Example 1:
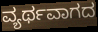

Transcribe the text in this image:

ವ್ಯರ್ಥವಾಗದ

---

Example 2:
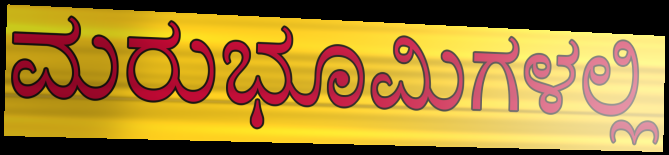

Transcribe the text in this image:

ಮರುಭೂಮಿಗಳಲ್ಲಿ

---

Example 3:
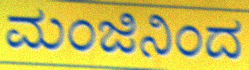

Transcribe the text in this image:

ಮಂಜಿನಿಂದ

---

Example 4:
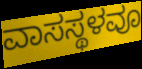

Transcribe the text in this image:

ವಾಸಸ್ಥಳವೂ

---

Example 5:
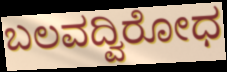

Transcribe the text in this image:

ಬಲವದ್ವಿರೋಧ